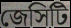
জেসিটি